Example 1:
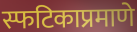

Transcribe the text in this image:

स्फटिकाप्रमाणे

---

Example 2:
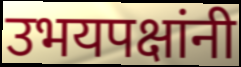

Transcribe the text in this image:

उभयपक्षांनी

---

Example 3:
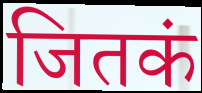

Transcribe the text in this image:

जितकं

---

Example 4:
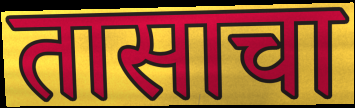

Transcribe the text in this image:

तासाचा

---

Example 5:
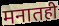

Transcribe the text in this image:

मनातही